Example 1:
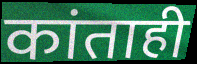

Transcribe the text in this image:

कांताही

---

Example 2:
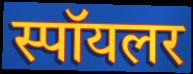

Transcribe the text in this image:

स्पॉयलर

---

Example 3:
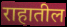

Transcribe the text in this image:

राहातील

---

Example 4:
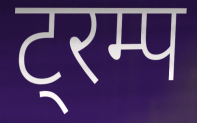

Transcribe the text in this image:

ट्रम्प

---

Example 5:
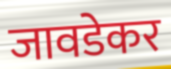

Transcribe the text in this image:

जावडेकर